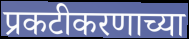
प्रकटीकरणाच्या